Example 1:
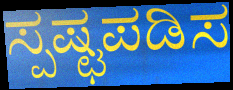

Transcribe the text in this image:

ಸ್ಪಷ್ಟಪಡಿಸ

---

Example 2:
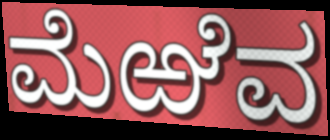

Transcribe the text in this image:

ಮೆಱೆವ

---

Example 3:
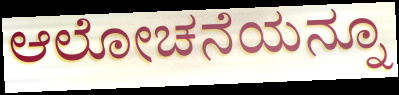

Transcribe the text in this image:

ಆಲೋಚನೆಯನ್ನೂ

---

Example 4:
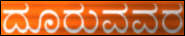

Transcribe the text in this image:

ದೂರುವವರ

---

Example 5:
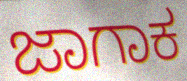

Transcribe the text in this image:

ಜಾಗಾಕ